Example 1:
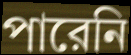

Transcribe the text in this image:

পারেনি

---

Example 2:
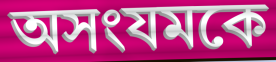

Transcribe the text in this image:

অসংযমকে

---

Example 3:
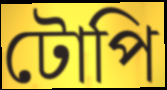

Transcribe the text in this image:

টোপি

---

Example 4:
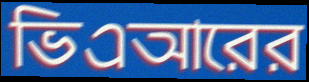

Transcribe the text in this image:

ভিএআরের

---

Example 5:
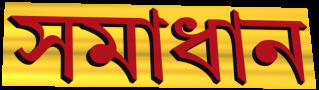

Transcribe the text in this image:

সমাধান